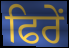
ਫਿਰੇਂ